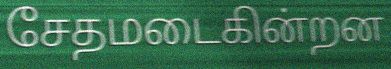
சேதமடைகின்றன